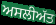
ਅਸਲੀਅੱਤ